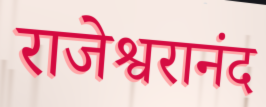
राजेश्वरानंद